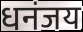
धनंजय